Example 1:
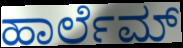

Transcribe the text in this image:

ಹಾರ್ಲೆಮ್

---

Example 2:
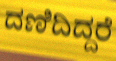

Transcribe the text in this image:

ದಣಿದಿದ್ದರೆ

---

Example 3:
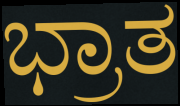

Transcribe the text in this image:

ಭ್ರಾತ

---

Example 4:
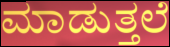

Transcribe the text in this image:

ಮಾಡುತ್ತಲೆ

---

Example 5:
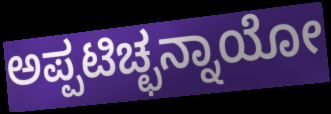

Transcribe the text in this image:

ಅಪ್ಪಟಿಚ್ಛನ್ನಾಯೋ